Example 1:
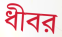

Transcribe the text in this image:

ধীবর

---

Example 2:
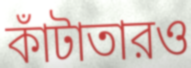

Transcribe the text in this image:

কাঁটাতারও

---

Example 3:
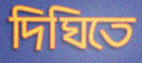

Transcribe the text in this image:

দিঘিতে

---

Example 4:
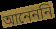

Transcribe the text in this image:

আনেননি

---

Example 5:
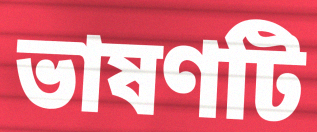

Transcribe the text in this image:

ভাষণটি